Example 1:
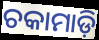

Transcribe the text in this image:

ଚକାମାଡ଼ି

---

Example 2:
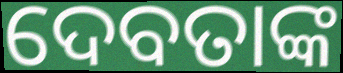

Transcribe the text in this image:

ଦେବତାଙ୍କ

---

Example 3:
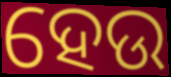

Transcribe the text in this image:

ହେଉ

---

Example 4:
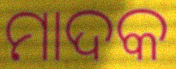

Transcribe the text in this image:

ମାଦକ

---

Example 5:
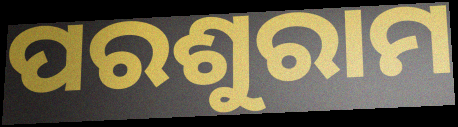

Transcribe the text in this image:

ପରଶୁରାମ